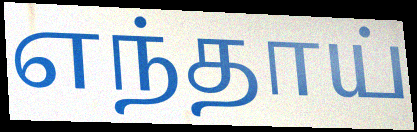
எந்தாய்